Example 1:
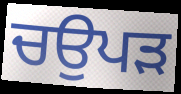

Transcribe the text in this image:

ਚਉਪੜ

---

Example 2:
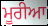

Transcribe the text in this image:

ਮੂਰੀਆ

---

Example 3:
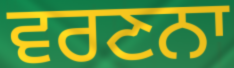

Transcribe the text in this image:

ਵਰਣਨਾ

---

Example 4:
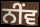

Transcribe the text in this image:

ਨੀਂਵ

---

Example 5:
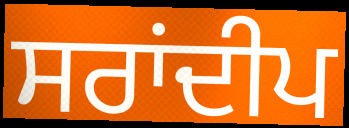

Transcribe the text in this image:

ਸਰਾਂਦੀਪ